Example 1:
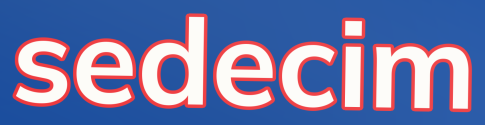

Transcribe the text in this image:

sedecim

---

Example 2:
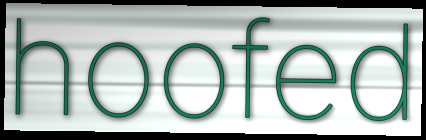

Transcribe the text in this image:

hoofed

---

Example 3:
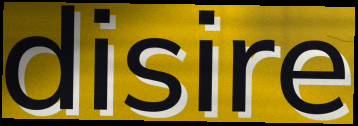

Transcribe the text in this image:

disire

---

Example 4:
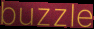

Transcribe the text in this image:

buzzle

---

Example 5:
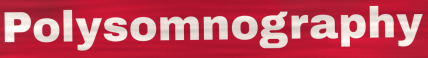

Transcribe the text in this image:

Polysomnography